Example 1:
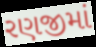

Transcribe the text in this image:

રણજીમાં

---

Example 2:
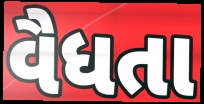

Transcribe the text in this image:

વૈધતા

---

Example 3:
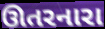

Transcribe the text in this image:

ઊતરનારા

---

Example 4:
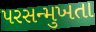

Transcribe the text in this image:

પરસન્મુખતા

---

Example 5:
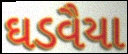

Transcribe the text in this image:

ઘડવૈયા